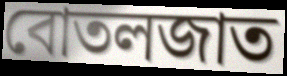
বোতলজাত